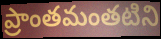
ప్రాంతమంతటిని